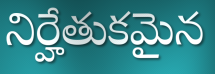
నిర్హేతుకమైన